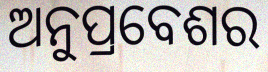
ଅନୁପ୍ରବେଶର